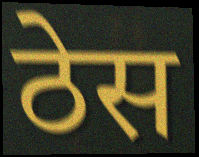
ठेस